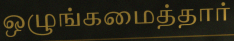
ஒழுங்கமைத்தார்